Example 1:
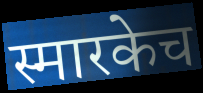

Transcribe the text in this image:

स्मारकेच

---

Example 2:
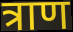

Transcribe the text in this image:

त्राण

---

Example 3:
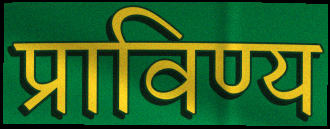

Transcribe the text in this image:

प्राविण्य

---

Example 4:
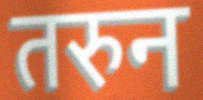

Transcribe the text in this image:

तरुन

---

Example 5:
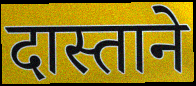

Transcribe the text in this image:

दास्ताने